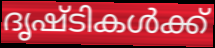
ദൃഷ്ടികൾക്ക്